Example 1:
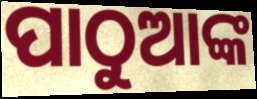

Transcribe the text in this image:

ପାଠୁଆଙ୍କ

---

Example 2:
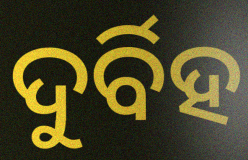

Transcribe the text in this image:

ଦୁର୍ବିହ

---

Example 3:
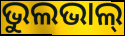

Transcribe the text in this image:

ଭୁଲଭାଲ୍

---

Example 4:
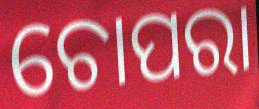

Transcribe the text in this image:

ଚୋପରା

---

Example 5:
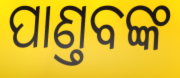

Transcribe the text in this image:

ପାଣ୍ତବଙ୍କ